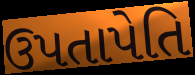
ઉપતાપેતિ